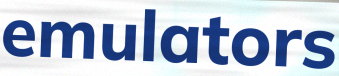
emulators